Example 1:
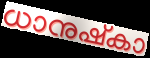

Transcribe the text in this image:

ധാനുഷ്കാ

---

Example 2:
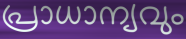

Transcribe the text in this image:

പ്രാധാന്യവും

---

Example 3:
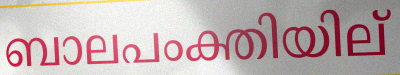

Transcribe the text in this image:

ബാലപംക്തിയില്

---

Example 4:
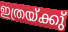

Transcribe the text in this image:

ഇത്രയ്ക്കു്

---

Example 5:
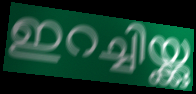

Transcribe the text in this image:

ഇറച്ചിയ്ക്കു